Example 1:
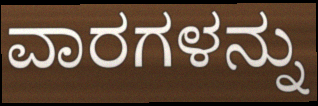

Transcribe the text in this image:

ವಾರಗಳನ್ನು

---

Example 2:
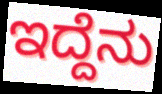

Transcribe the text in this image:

ಇದ್ದೆನು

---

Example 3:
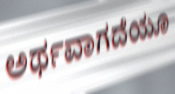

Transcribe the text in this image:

ಅರ್ಥವಾಗದೆಯೂ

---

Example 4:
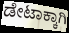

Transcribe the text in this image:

ಡೇಟಾಕ್ಕಾಗಿ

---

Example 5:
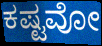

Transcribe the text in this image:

ಕಷ್ಟವೋ